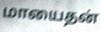
மாயைதன்